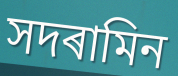
সদৰামিন